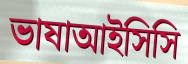
ভাষাআইসিসি